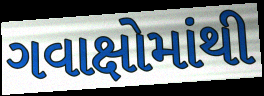
ગવાક્ષોમાંથી